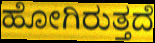
ಹೋಗಿರುತ್ತದೆ